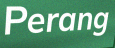
Perang